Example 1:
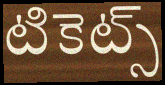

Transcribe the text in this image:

టికెట్స్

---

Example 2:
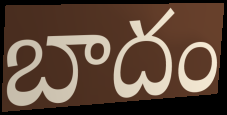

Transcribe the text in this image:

బాదం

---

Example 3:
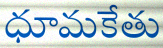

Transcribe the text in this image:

ధూమకేతు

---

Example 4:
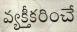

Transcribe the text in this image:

వ్యక్తీకరించే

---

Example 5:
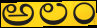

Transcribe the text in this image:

అలం